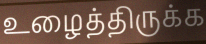
உழைத்திருக்க